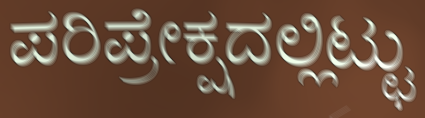
ಪರಿಪ್ರೇಕ್ಷದಲ್ಲಿಟ್ಟು